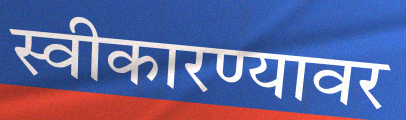
स्वीकारण्यावर